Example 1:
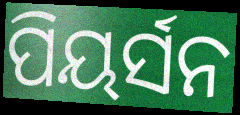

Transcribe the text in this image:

ପିୟର୍ସନ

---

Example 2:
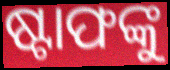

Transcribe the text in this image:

ଷ୍ଟାଫଙ୍କୁ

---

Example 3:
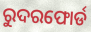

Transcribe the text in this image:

ରୁଦରଫୋର୍ଡ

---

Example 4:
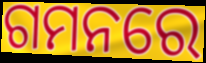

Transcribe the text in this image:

ଗମନରେ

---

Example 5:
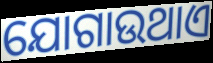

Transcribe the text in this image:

ଯୋଗାଉଥାଏ